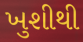
ખુશીથી